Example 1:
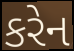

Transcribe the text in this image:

કરેન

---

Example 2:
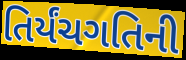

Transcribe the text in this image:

તિર્યંચગતિની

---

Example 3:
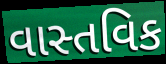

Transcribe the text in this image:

વાસ્તવિક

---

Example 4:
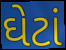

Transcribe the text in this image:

ઘેટાં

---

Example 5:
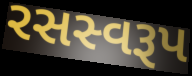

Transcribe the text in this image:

રસસ્વરૂપ